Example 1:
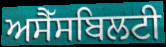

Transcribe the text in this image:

ਅਸੈੱਸਬਿਲਟੀ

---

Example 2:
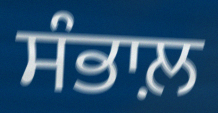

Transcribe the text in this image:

ਸੰਭਾਲ਼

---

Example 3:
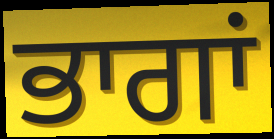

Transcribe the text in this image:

ਭਾਗਾਂ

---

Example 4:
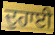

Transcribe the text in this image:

ਦੁਹਾਈ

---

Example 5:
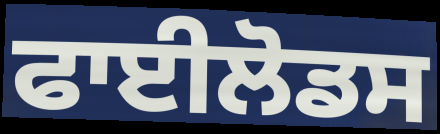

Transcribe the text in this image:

ਫਾਈਲੋਡਸ